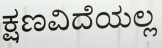
ಕ್ಷಣವಿದೆಯಲ್ಲ